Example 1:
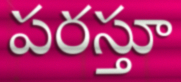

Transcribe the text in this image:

పరస్తూ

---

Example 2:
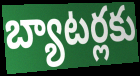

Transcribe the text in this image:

బ్యాటర్లకు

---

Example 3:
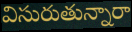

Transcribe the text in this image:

విసురుతున్నారా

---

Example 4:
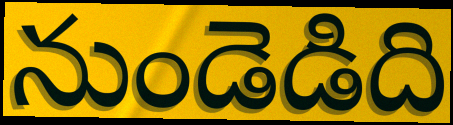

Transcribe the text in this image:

నుండెడిది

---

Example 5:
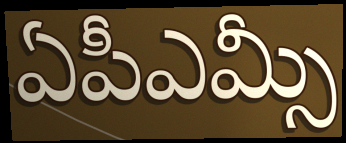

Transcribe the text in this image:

ఏపీఎమ్సీ